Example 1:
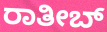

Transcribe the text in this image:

ರಾತೀಬ್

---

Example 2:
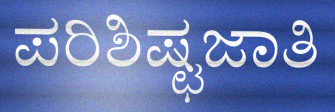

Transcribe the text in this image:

ಪರಿಶಿಷ್ಟಜಾತಿ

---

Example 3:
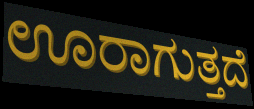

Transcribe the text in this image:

ಊರಾಗುತ್ತದೆ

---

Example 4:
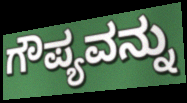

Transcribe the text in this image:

ಗೌಪ್ಯವನ್ನು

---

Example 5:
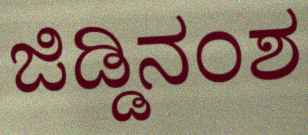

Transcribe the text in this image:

ಜಿಡ್ಡಿನಂಶ